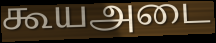
கூயஅடை